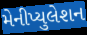
મેનીપ્યુલેશન